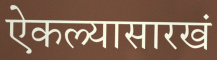
ऐकल्यासारखं